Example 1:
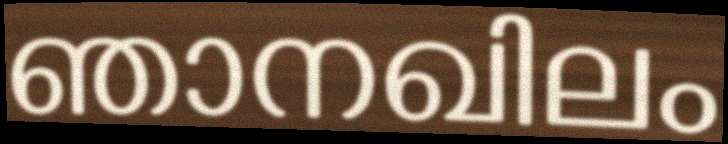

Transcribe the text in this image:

ഞാനഖിലം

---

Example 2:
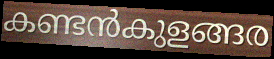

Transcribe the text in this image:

കണ്ടൻകുളങ്ങര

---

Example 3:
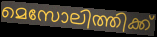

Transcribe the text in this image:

മെസോലിത്തിക്ക്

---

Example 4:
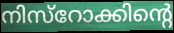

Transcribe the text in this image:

നിസ്റോക്കിന്റെ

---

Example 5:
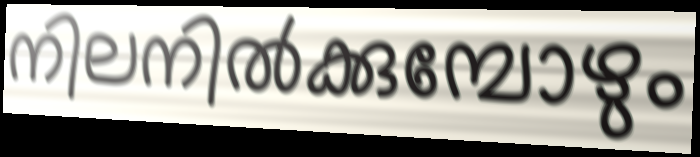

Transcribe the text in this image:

നിലനിൽക്കുമ്പോഴും